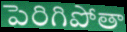
పెరిగిపోతా